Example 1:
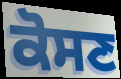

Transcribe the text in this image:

ਕੋਸਣ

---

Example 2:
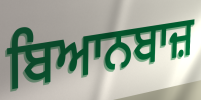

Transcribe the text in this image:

ਬਿਆਨਬਾਜ਼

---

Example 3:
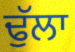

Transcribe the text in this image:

ਢੁੱਲਾ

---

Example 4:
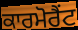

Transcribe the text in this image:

ਕਾਰਮੋਰੈਂਟ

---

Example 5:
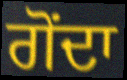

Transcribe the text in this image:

ਗੋਂਦਾ